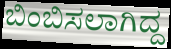
ಬಿಂಬಿಸಲಾಗಿದ್ದ